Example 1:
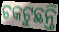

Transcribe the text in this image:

ଚକଟୁଛନ୍ତି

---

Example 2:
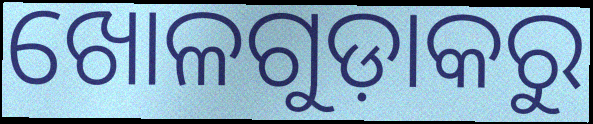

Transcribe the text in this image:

ଖୋଳଗୁଡ଼ାକରୁ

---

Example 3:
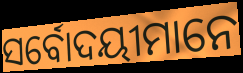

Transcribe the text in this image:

ସର୍ବୋଦୟୀମାନେ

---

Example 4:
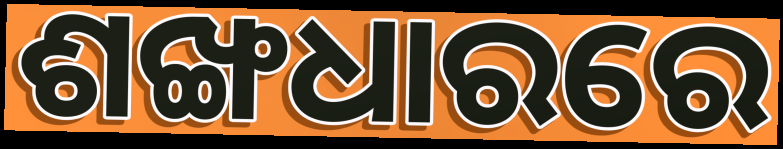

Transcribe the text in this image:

ଶଙ୍ଖଧାରରେ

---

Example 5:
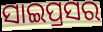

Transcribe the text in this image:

ସାଇପ୍ରସର